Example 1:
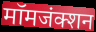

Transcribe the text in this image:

मॉमजंक्शन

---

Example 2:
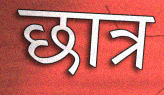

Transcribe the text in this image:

छात्र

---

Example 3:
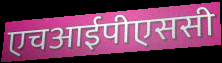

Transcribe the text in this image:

एचआईपीएससी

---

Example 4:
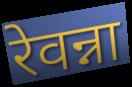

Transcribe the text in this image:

रेवन्ना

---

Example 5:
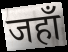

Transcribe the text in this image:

जहाँ